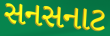
સનસનાટ